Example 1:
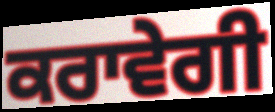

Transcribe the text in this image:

ਕਰਾਵੇਗੀ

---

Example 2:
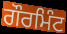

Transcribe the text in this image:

ਗੌਰਮਿੰਟ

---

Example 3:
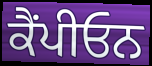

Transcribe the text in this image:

ਕੈਂਪੀਓਨ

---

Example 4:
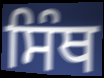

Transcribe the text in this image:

ਸਿੰਥ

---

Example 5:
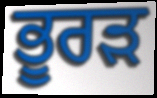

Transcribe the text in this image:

ਭੂਰੜ